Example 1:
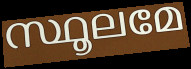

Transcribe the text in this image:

സ്ഥൂലമേ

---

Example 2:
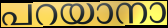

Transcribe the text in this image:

പറയാനാ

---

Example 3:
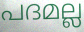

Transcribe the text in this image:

പദമല്ല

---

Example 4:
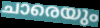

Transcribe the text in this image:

ചാരെയും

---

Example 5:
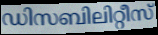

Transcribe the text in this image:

ഡിസബിലിറ്റീസ്